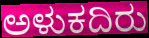
ಅಳುಕದಿರು